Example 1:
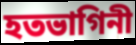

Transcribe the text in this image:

হতভাগিনী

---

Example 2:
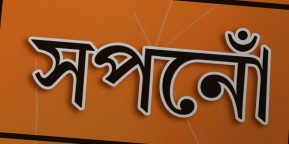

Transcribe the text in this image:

সপনোঁ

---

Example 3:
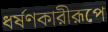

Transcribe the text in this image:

ধর্ষণকারীরূপে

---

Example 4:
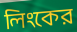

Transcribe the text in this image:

লিংকের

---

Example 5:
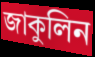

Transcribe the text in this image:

জাকুলিন